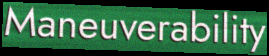
Maneuverability